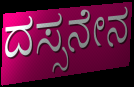
ದಸ್ಸನೇನ